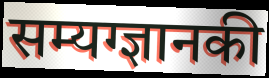
सम्यग्ज्ञानकी